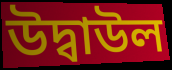
উদ্বাউল